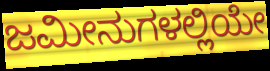
ಜಮೀನುಗಳಲ್ಲಿಯೇ